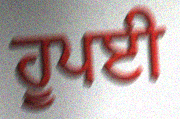
ਹੂਪਈ